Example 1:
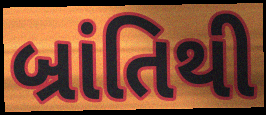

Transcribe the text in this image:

બ્રાંતિથી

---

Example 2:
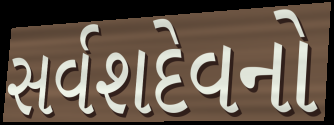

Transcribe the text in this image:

સર્વશદેવનો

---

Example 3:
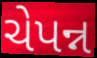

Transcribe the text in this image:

ચેપન્ન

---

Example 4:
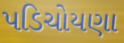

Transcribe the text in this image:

પડિચોયણા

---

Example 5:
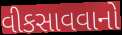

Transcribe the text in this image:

વીકસાવવાનો